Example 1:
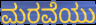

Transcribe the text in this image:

ಮರವೆಯು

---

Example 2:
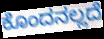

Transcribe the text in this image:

ಕೊಂದನಲ್ಲದೆ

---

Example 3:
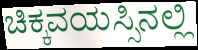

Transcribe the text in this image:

ಚಿಕ್ಕವಯಸ್ಸಿನಲ್ಲಿ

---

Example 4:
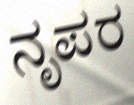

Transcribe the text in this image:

ನೃಪರ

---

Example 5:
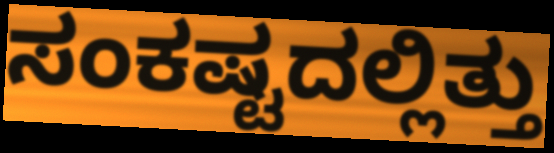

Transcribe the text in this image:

ಸಂಕಷ್ಟದಲ್ಲಿತ್ತು